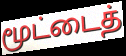
மூட்டைத்